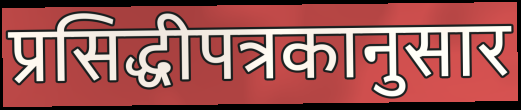
प्रसिद्धीपत्रकानुसार